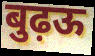
बुढ़ऊ